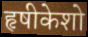
हृषीकेशो